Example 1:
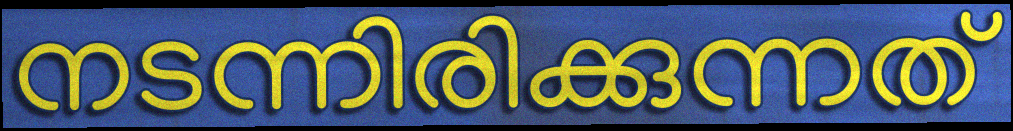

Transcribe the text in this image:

നടന്നിരിക്കുന്നത്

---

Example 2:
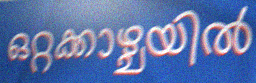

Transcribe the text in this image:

ഒറ്റക്കാഴ്ചയിൽ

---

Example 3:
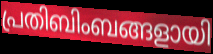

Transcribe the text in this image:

പ്രതിബിംബങ്ങളായി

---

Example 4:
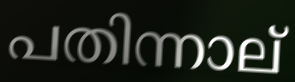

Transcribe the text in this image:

പതിന്നാല്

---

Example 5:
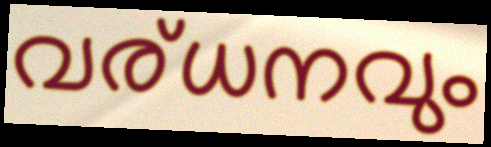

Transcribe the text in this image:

വര്ധനവും